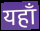
यहाँ